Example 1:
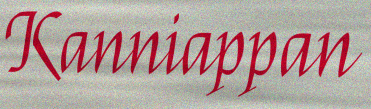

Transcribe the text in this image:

Kanniappan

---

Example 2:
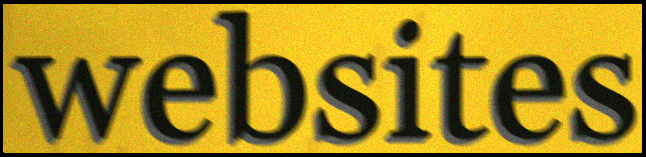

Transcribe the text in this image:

websites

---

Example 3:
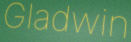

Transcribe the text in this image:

Gladwin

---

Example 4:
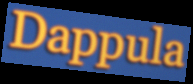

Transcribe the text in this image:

Dappula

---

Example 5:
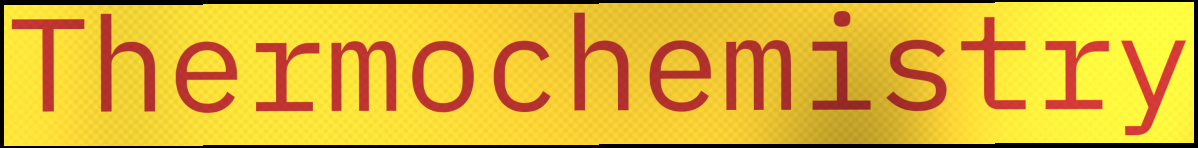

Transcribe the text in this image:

Thermochemistry